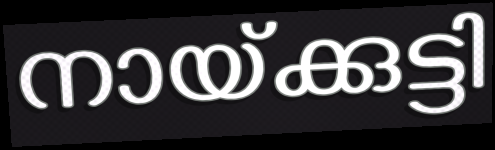
നായ്‌ക്കുട്ടി